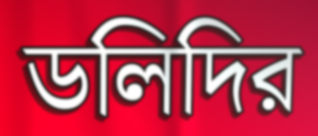
ডলিদির